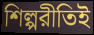
শিল্পরীতিই